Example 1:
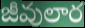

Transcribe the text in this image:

జీవులార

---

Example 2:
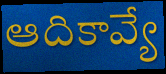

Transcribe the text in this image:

ఆదికావ్యే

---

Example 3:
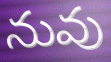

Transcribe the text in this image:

నువు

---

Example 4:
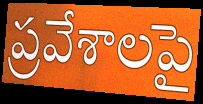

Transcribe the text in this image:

ప్రవేశాలపై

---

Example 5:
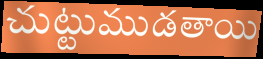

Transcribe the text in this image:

చుట్టుముడతాయి